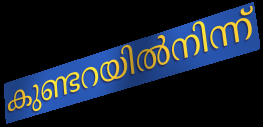
കുണ്ടറയിൽനിന്ന്